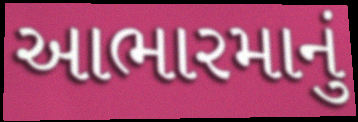
આભારમાનું